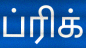
ப்ரிக்